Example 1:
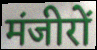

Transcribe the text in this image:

मंजीरों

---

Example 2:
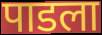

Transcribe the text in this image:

पाडला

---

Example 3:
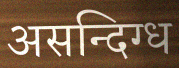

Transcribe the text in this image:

असन्दिग्ध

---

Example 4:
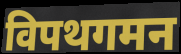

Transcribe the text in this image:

विपथगमन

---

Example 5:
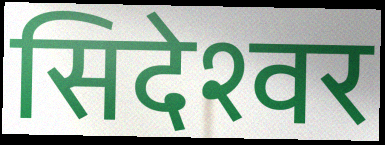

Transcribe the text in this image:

सिदेश्वर